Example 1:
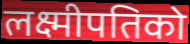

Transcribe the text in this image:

लक्ष्मीपतिको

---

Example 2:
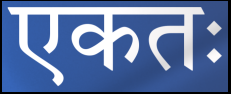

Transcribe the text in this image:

एकतः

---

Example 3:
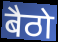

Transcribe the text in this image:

बैठो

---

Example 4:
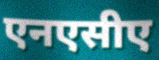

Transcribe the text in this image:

एनएसीए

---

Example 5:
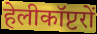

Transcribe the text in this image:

हेलीकॉप्टरों